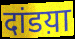
दांडय़ा